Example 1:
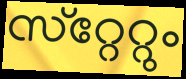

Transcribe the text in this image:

സ്‌റ്റേറ്റും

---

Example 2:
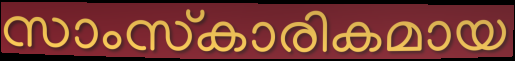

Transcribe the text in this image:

സാംസ്‌കാരികമായ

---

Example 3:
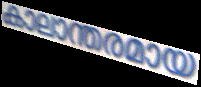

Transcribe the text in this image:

കാലാന്തരമായ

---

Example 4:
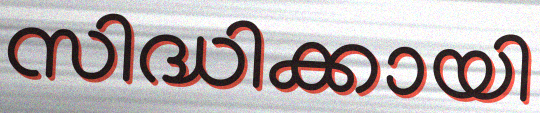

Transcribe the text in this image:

സിദ്ധിക്കായി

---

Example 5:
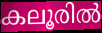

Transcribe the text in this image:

കലൂരിൽ